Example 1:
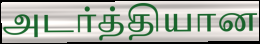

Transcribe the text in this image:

அடர்த்தியான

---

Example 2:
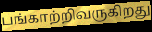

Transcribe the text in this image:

பங்காற்றிவருகிறது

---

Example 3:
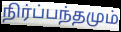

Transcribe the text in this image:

நிர்ப்பந்தமும்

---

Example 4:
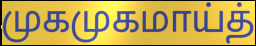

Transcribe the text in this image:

முகமுகமாய்த்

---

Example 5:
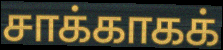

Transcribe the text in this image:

சாக்காகக்